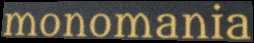
monomania